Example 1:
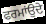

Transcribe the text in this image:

ਫਰਮਾਂਉਦੇ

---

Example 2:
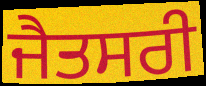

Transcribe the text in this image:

ਜੈਤਸਰੀ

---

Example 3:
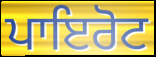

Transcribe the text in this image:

ਪਾਇਰੋਟ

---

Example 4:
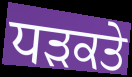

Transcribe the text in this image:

ਧੜਕਤੇ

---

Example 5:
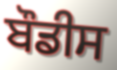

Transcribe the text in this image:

ਬੌਡੀਸ